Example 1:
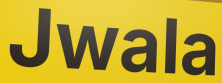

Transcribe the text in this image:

Jwala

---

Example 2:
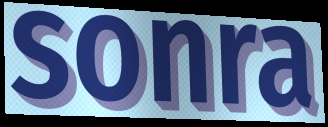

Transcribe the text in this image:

sonra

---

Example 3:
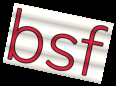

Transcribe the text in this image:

bsf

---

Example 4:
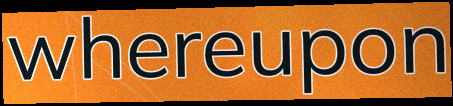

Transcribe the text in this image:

whereupon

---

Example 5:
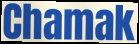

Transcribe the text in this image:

Chamak